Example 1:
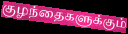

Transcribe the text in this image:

குழந்தைகளுக்கும்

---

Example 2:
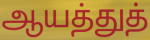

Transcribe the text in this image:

ஆயத்துத்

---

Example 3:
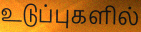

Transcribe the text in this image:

உடுப்புகளில்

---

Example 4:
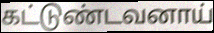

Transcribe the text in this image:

கட்டுண்டவனாய்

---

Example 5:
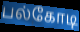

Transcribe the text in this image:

பல்கோடி